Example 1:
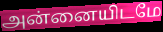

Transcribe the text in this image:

அன்னையிடமே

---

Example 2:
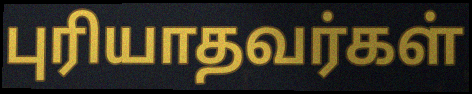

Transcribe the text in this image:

புரியாதவர்கள்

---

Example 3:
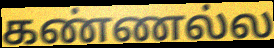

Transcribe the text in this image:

கண்ணல்ல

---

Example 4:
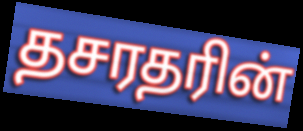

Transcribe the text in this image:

தசரதரின்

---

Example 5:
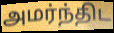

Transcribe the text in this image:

அமர்ந்திட